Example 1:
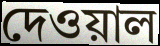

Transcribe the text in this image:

দেওয়াল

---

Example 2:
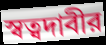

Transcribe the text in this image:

স্বত্বদাবীর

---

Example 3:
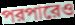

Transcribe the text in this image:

পরপারেও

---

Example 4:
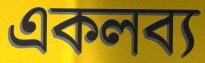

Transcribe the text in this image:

একলব্য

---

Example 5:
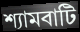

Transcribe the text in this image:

শ্যামবাটি